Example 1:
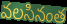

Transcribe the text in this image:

వలసినంత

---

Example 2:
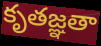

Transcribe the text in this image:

కృతజ్ఞతా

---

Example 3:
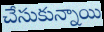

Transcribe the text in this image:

చేసుకున్నాయి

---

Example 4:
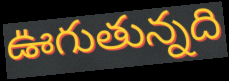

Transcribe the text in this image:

ఊగుతున్నది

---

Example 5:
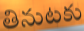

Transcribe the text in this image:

తినుటకు